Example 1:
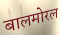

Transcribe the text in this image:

बालमोरल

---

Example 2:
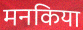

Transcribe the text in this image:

मनकिया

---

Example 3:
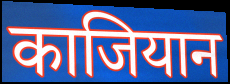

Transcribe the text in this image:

काजियान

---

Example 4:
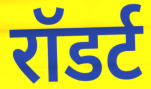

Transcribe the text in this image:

रॉडर्ट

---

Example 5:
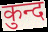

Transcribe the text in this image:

कुन्द